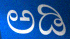
ಅಡಿ